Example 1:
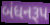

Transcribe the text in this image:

બંધનરૂપ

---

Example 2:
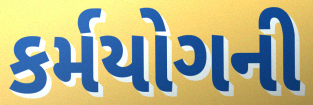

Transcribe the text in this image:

કર્મયોગની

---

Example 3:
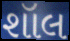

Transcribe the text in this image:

શૉલ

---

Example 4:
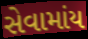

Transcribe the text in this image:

સેવામાંય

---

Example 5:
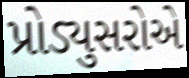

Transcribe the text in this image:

પ્રોડ્યુસરોએ